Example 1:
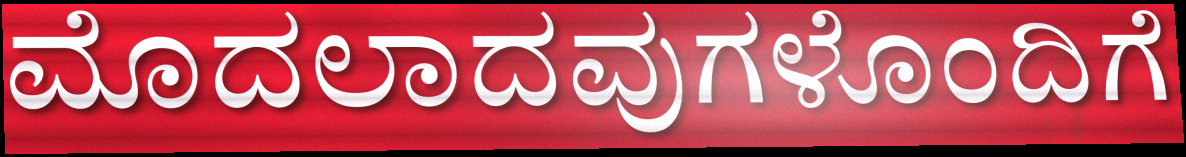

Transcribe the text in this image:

ಮೊದಲಾದವುಗಳೊಂದಿಗೆ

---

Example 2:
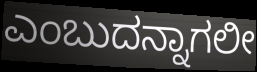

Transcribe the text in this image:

ಎಂಬುದನ್ನಾಗಲೀ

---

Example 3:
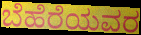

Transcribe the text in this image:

ಬೆಹೆರೆಯವರ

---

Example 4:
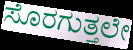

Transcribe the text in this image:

ಸೊರಗುತ್ತಲೇ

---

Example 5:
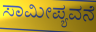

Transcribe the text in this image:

ಸಾಮೀಪ್ಯವನೆ